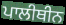
ਪਾਲੀਥੀਨ